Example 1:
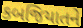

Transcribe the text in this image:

કબજિયાતને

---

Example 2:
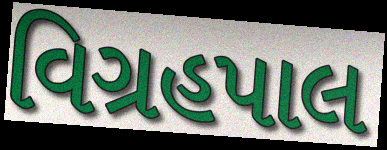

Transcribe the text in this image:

વિગ્રહપાલ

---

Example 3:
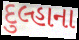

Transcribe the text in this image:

દુલ્હાના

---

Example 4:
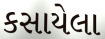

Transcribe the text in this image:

કસાયેલા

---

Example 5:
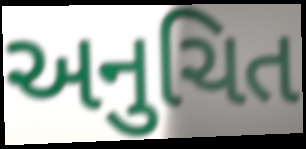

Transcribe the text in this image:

અનુચિત